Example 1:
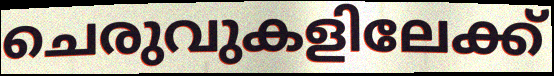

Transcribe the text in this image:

ചെരുവുകളിലേക്ക്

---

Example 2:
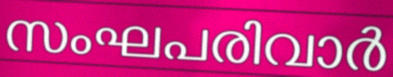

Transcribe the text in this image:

സംഘപരിവാർ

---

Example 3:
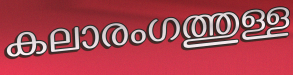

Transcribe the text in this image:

കലാരംഗത്തുള്ള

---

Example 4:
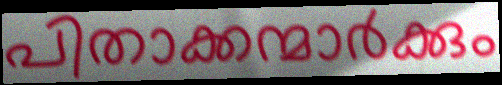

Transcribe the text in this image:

പിതാക്കന്മാർക്കും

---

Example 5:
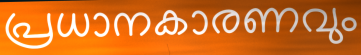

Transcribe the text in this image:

പ്രധാനകാരണവും